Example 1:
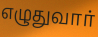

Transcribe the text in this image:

எழுதுவார்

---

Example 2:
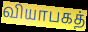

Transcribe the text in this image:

வியாபகத்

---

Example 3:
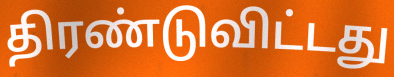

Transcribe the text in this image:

திரண்டுவிட்டது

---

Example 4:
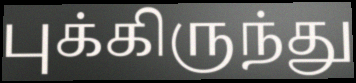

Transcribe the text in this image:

புக்கிருந்து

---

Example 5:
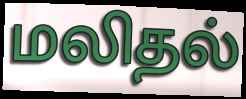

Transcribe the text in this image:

மலிதல்